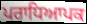
ਪਰਾਧਿਆਪਕ